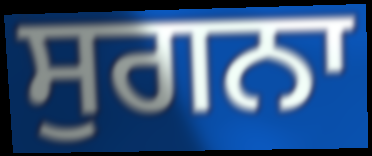
ਸੁਗਨਾ